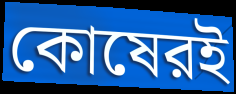
কোষেরই